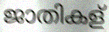
ജാതികള്